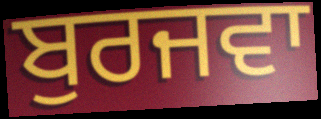
ਬੁਰਜਵਾ